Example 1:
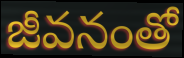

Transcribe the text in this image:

జీవనంతో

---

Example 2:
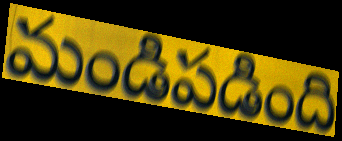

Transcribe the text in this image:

మండిపడింది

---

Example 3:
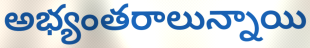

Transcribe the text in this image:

అభ్యంతరాలున్నాయి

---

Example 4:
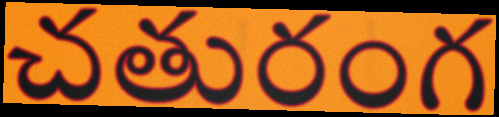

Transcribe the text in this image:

చతురంగ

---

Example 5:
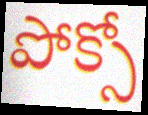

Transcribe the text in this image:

పోక్సో